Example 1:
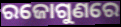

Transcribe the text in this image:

ରଜୋଗୁଣରେ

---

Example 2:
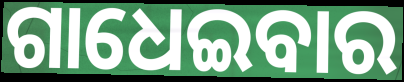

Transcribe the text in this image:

ଗାଧେଇବାର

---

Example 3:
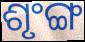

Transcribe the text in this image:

ଶୃଂଙ୍ଗ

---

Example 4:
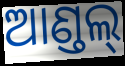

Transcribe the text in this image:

ଆଣ୍ଡଲ୍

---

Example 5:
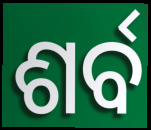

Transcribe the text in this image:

ଶର୍ବ